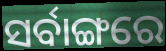
ସର୍ବାଙ୍ଗରେ